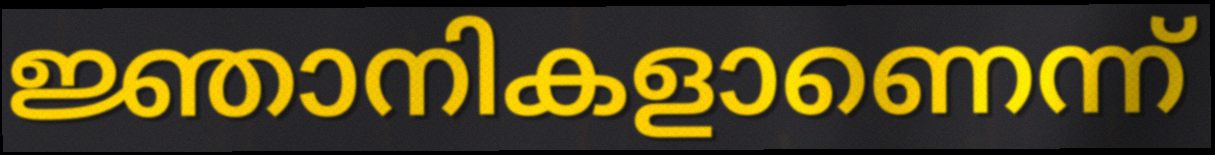
ജ്ഞാനികളാണെന്ന്